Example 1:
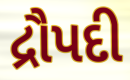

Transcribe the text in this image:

દ્રૌપદી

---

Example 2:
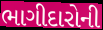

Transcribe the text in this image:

ભાગીદારોની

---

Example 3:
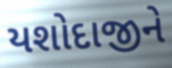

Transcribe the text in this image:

યશોદાજીને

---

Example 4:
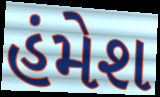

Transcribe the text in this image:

હંમેશ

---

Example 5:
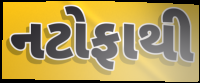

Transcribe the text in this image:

નટોફાથી